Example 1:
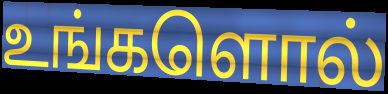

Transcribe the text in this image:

உங்களொல்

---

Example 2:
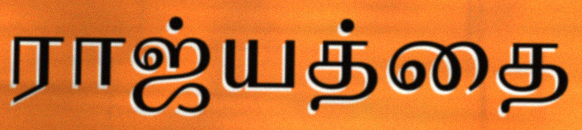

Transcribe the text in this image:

ராஜ்யத்தை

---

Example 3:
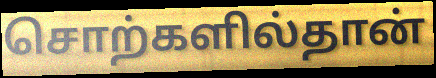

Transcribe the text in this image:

சொற்களில்தான்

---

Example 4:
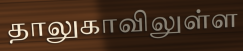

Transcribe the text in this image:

தாலுகாவிலுள்ள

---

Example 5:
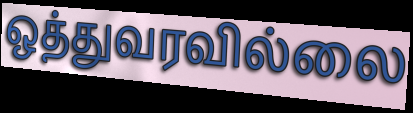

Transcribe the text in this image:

ஒத்துவரவில்லை